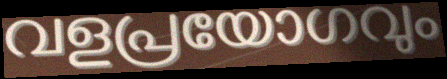
വളപ്രയോഗവും